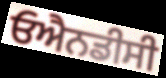
ਓਐਨਡੀਸੀ